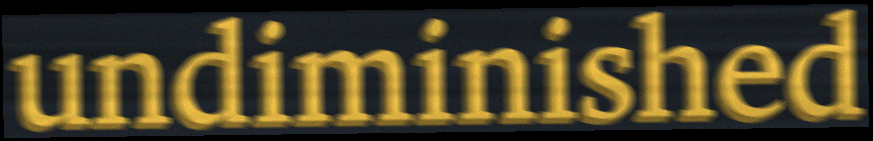
undiminished